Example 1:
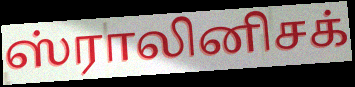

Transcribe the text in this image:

ஸ்ராலினிசக்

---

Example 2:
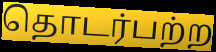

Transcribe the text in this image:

தொடர்பற்ற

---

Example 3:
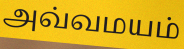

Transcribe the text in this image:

அவ்வமயம்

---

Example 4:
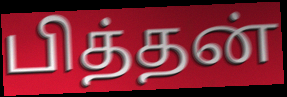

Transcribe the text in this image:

பித்தன்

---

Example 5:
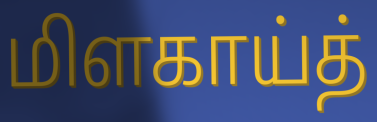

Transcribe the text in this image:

மிளகாய்த்